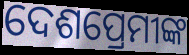
ଦେଶପ୍ରେମୀଙ୍କ